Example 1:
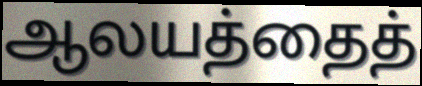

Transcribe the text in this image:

ஆலயத்தைத்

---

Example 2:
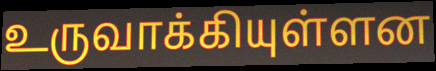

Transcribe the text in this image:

உருவாக்கியுள்ளன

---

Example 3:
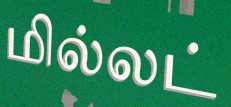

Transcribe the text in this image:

மில்லட்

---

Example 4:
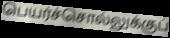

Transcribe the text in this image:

பெயர்ச்சொல்லுக்குப்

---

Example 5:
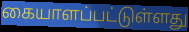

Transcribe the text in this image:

கையாளப்பட்டுள்ளது